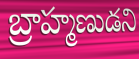
బ్రాహ్మణుడని